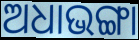
ଅଧାଭଙ୍ଗା